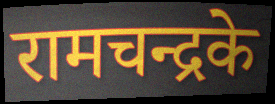
रामचन्द्रके